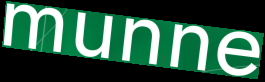
munne